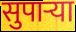
सुपार्‍या